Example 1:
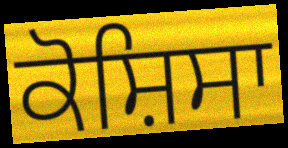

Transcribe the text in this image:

ਕੋਸ਼ਿਸਾ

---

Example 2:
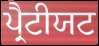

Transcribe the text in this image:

ਪ੍ਰੈਟੀਯਟ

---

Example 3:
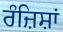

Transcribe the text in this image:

ਰੰਜ਼ਿਸ਼ਾਂ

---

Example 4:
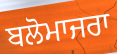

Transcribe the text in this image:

ਬਲੋਮਾਜਰਾ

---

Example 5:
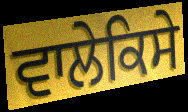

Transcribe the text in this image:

ਵਾਲੇਕਿਸੇ